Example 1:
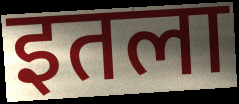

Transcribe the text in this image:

इतला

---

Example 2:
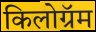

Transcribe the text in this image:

किलोग्रॅम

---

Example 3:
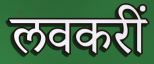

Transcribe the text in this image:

लवकरीं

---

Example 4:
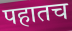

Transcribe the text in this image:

पहातच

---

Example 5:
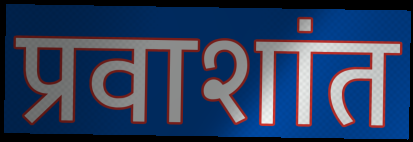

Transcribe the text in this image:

प्रवाशांत